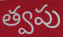
త్వపు